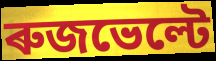
ৰুজভেল্টে